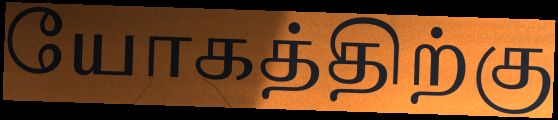
யோகத்திற்கு